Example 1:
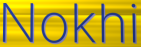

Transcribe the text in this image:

Nokhi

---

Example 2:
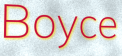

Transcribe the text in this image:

Boyce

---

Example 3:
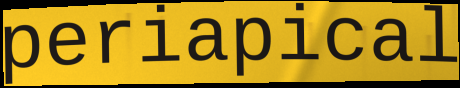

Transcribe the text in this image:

periapical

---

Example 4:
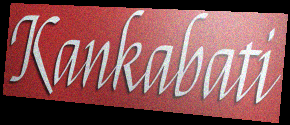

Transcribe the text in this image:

Kankabati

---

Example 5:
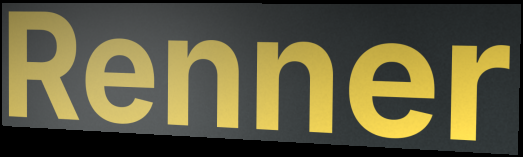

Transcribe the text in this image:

Renner